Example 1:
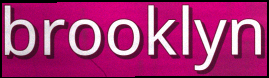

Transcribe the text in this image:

brooklyn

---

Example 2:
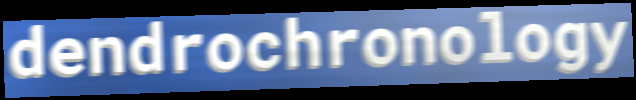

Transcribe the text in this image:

dendrochronology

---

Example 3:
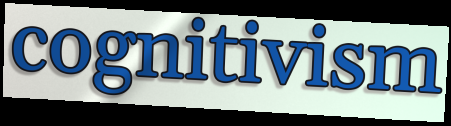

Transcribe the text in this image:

cognitivism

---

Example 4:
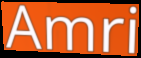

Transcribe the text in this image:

Amri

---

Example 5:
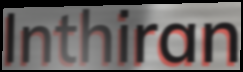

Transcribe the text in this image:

Inthiran